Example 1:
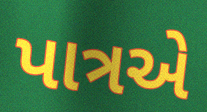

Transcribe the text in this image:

પાત્રએ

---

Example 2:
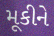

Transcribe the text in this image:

મૂકીને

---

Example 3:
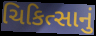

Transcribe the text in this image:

ચિકિત્સાનું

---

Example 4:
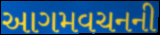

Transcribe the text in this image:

આગમવચનની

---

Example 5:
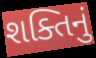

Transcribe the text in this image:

શક્તિનું